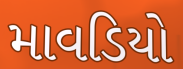
માવડિયો